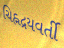
ચિહ્નદ્રયવર્તી